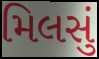
મિલસું